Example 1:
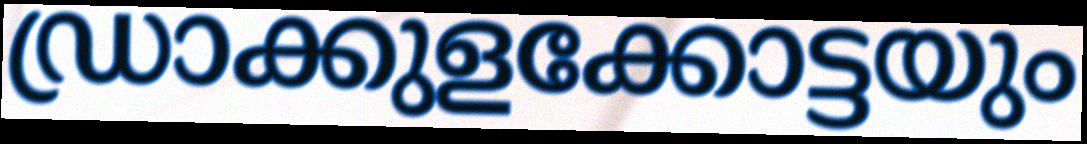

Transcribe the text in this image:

ഡ്രാക്കുളക്കോട്ടയും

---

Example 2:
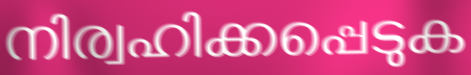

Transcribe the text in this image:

നിര്വഹിക്കപ്പെടുക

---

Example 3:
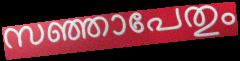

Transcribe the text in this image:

സഞ്ഞാപേതും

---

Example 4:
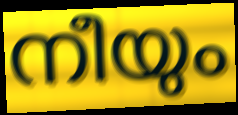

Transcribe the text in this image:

നീയും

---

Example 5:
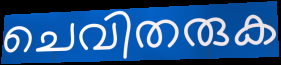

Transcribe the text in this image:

ചെവിതരുക